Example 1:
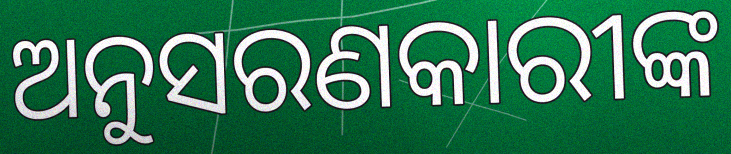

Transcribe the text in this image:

ଅନୁସରଣକାରୀଙ୍କ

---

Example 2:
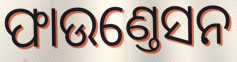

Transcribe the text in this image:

ଫାଉଣ୍ତେସନ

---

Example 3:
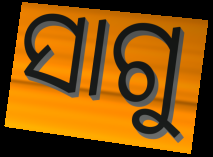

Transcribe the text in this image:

ସାଗୁ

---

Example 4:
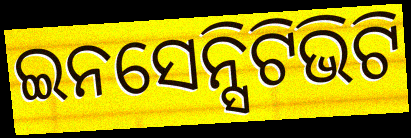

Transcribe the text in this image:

ଇନସେନ୍ସିଟିଭିଟି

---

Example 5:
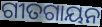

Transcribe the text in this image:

ଗୀତଗାୟନ